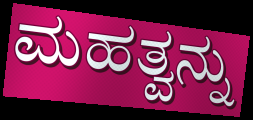
ಮಹತ್ವನ್ನು